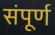
संपूर्ण